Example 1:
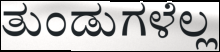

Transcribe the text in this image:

ತುಂಡುಗಳೆಲ್ಲ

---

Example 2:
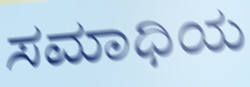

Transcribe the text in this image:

ಸಮಾಧಿಯ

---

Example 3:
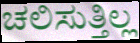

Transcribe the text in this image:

ಚಲಿಸುತ್ತಿಲ್ಲ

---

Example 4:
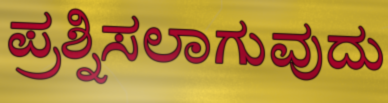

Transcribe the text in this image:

ಪ್ರಶ್ನಿಸಲಾಗುವುದು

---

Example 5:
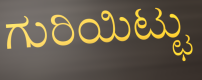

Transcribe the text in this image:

ಗುರಿಯಿಟ್ಟು